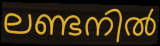
ലണ്ടനിൽ